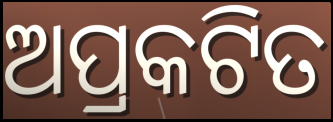
ଅପ୍ରକଟିତ